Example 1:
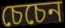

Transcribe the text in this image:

চেচেন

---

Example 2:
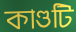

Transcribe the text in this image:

কাণ্ডটি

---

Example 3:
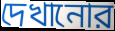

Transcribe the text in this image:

দেখানোর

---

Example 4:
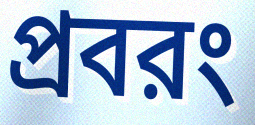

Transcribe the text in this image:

প্রবরং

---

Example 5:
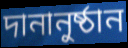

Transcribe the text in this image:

দানানুষ্ঠান